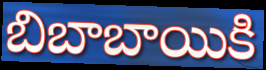
బిబాబాయికి